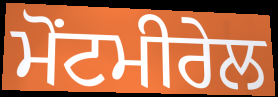
ਮੋਂਟਮੀਰੇਲ